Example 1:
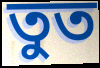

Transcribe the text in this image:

তুত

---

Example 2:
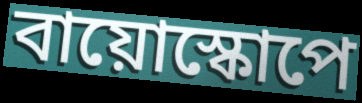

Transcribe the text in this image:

বায়োস্কোপে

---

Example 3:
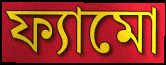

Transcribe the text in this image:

ফ্যামো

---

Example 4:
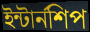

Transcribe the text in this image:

ইন্টার্নশিপ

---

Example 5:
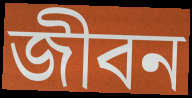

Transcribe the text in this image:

জীবন